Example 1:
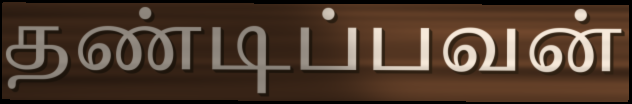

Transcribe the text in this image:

தண்டிப்பவன்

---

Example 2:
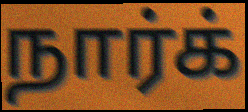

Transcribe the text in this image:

நார்க்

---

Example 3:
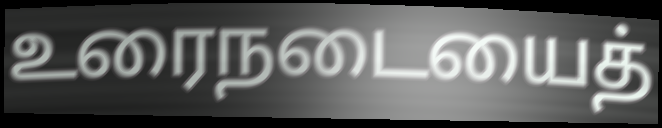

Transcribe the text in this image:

உரைநடையைத்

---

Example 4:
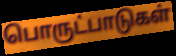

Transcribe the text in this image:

பொருட்பாடுகள்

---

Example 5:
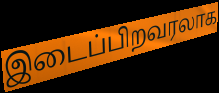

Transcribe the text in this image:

இடைப்பிறவரலாக